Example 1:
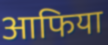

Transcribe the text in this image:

आफिया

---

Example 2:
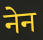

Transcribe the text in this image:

नेन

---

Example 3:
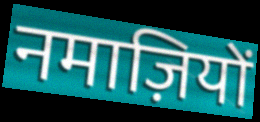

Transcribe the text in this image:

नमाज़ियों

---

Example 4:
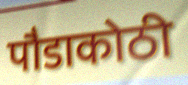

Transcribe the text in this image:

पौडाकोठी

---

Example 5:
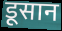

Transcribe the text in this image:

डूसान